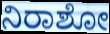
ನಿರಾಶೋ